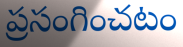
ప్రసంగించటం